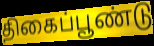
திகைப்பூண்டு